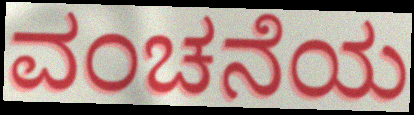
ವಂಚನೆಯ